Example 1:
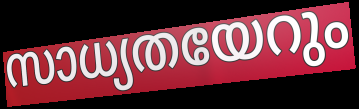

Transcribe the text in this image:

സാധ്യതയേറും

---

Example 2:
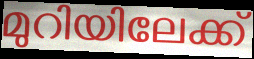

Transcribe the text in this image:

മുറിയിലേക്ക്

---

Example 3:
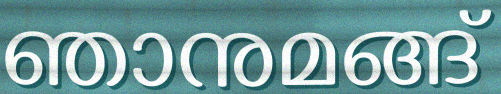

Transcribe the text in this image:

ഞാനുമങ്ങ്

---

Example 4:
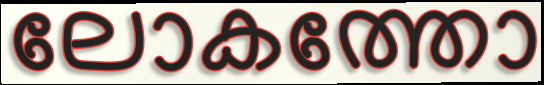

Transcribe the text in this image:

ലോകത്തോ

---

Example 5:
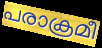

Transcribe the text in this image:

പരാക്രമീ